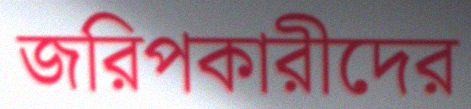
জরিপকারীদের